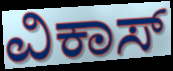
ವಿಕಾಸ್